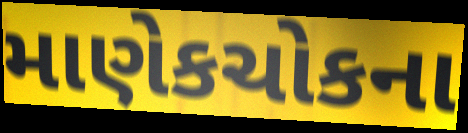
માણેકચોકના